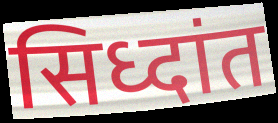
सिध्दांत